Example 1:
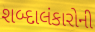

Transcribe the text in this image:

શબ્દાલંકારોની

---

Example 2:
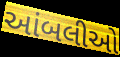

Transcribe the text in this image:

આંબલીઓ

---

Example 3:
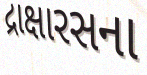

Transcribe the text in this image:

દ્રાક્ષારસના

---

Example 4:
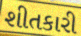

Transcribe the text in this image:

શીતકારી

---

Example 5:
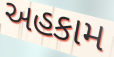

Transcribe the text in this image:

અહકામ